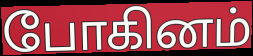
போகினம்